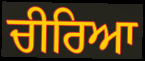
ਚੀਰਿਆ